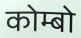
कोम्बो